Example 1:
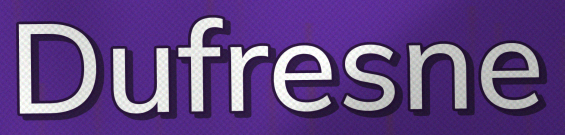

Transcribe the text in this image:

Dufresne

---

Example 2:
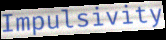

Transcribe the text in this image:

Impulsivity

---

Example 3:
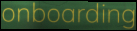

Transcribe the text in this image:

onboarding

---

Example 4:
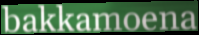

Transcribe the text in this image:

bakkamoena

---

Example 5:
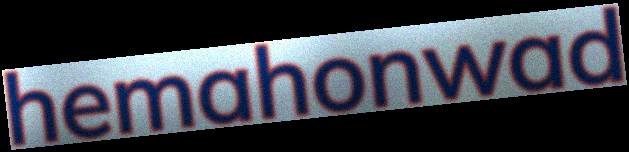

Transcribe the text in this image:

hemahonwad